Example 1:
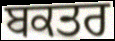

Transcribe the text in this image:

ਬਕਤਰ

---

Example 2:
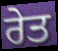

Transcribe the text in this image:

ਰੇਤ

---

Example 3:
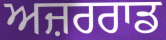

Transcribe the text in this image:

ਅਜ਼ਰਰਾਡ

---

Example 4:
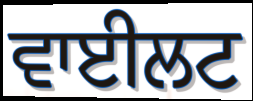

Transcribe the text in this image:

ਵਾਈਲਟ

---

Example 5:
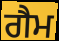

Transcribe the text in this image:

ਗੈਮ